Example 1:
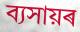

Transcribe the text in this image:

ব্যসায়ৰ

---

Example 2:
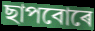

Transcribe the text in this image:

ছাপবোৰে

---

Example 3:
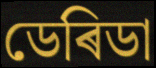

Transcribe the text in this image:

ডেৰিডা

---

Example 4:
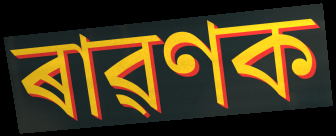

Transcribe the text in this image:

ৰাৱণক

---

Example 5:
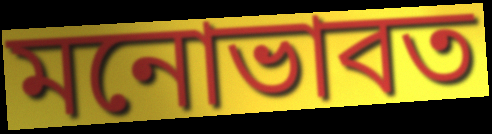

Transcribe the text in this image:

মনোভাবত